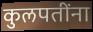
कुलपतींना